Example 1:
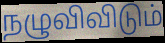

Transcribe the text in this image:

நழுவிவிடும்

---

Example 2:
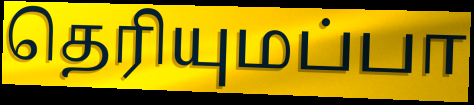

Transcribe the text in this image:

தெரியுமப்பா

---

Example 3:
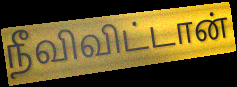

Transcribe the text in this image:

நீவிவிட்டான்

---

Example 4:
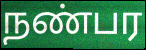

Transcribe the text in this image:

நண்பர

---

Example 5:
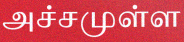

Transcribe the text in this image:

அச்சமுள்ள